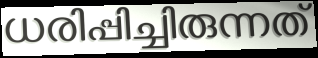
ധരിപ്പിച്ചിരുന്നത്